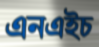
এনএইচ